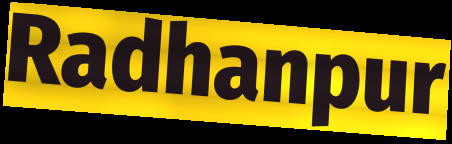
Radhanpur